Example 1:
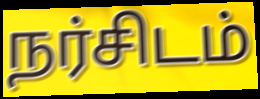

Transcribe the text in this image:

நர்சிடம்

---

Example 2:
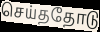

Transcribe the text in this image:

செய்ததோடு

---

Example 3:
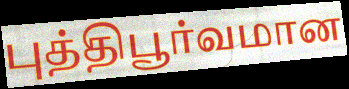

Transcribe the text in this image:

புத்திபூர்வமான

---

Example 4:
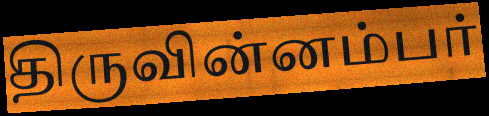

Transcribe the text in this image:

திருவின்னம்பர்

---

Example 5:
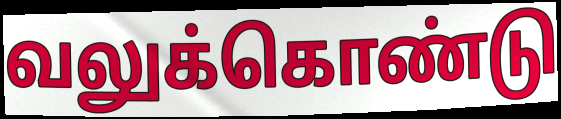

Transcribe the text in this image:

வலுக்கொண்டு